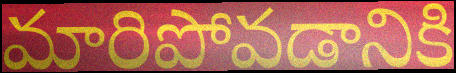
మారిపోవడానికి